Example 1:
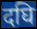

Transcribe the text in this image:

दघि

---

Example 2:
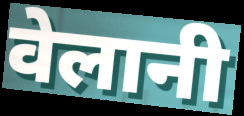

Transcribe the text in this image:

वेलानी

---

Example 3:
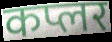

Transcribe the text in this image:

कप्लर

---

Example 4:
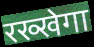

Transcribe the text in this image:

रख्खेगा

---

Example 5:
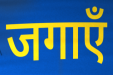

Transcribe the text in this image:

जगाएँ